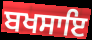
ਬਖਸਾਇ